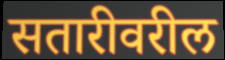
सतारीवरील